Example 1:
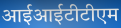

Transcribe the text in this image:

आईआईटीटीएम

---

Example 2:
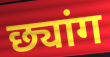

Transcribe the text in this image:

छ्यांग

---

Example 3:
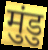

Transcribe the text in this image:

मुंडु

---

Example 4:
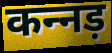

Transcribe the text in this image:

कन्‍नड़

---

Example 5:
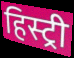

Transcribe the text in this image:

हिस्ट्री